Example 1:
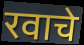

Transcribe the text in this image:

रवाचे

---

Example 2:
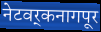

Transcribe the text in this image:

नेटवर्कनागपूर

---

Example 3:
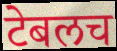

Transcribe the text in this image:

टेबलच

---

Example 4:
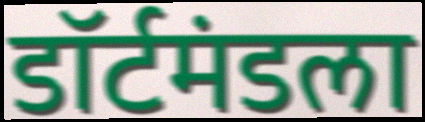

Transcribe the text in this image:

डॉर्टमंडला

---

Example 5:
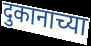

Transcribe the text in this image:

दुकानाच्या